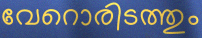
വേറൊരിടത്തും